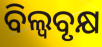
ବିଲ୍ୱବୃକ୍ଷ